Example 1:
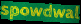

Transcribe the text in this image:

spowdwal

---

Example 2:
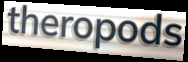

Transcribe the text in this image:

theropods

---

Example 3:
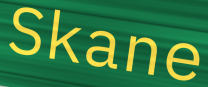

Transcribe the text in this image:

Skane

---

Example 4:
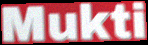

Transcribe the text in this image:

Mukti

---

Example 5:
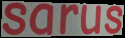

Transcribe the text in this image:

sarus